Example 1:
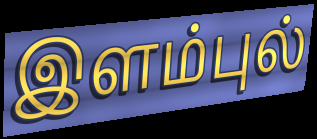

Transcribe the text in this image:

இளம்புல்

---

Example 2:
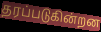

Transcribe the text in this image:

தரப்படுகின்றன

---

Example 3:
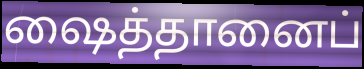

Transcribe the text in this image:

ஷைத்தானைப்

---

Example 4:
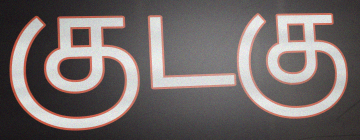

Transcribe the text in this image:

குடகு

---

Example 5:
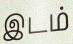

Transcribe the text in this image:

இடம்